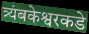
त्र्यंबकेश्वरकडे